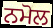
ਨਮੋਲ